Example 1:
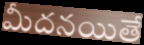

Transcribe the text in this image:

మీదనయితే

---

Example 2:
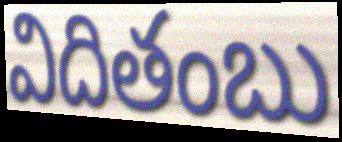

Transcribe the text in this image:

విదితంబు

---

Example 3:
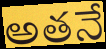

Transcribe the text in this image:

అతనే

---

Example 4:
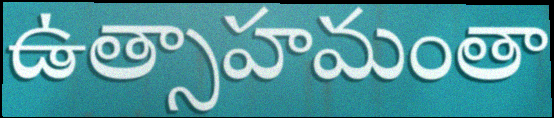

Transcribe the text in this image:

ఉత్సాహమంతా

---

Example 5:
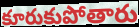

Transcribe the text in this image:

కూరుకుపోతారు